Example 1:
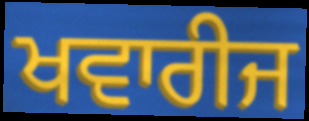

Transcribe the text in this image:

ਖਵਾਰੀਜ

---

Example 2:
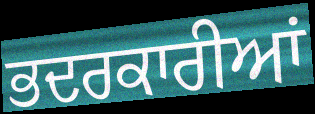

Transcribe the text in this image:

ਭਦਰਕਾਰੀਆਂ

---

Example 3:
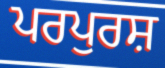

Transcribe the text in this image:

ਪਰਪੁਰਸ਼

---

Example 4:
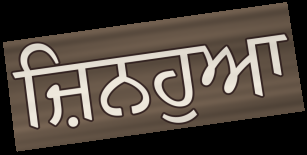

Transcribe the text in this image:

ਜ਼ਿਨਹੁਆ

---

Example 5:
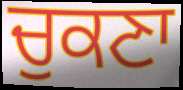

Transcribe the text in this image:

ਚੁਕਣਾ